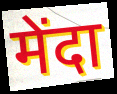
मेंदा